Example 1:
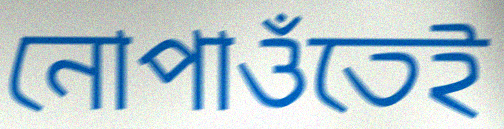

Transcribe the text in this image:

নোপাওঁতেই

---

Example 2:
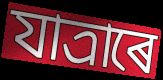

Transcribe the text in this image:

যাত্ৰাৰে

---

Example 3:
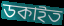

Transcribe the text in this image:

ডকাইত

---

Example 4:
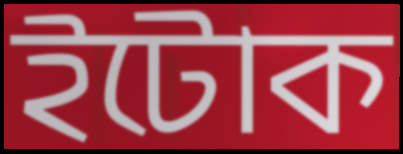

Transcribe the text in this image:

ইটোক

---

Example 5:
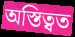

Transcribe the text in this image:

অস্তিত্বত